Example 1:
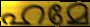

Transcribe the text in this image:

ഹമേ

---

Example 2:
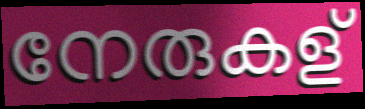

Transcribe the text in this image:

നേരുകള്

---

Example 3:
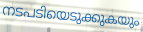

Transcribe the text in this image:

നടപടിയെടുക്കുകയും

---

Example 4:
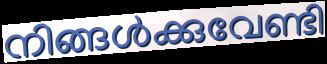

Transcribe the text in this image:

നിങ്ങൾക്കുവേണ്ടി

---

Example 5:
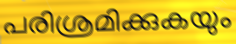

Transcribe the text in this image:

പരിശ്രമിക്കുകയും